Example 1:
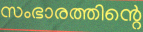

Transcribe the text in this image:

സംഭാരത്തിന്റെ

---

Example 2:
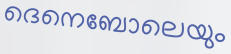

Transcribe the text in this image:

ദെനെബോലെയും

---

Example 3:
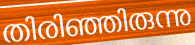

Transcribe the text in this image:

തിരിഞ്ഞിരുന്നു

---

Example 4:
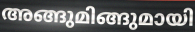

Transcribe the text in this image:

അങ്ങുമിങ്ങുമായി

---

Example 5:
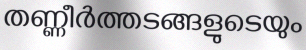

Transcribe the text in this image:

തണ്ണീർത്തടങ്ങളുടെയും